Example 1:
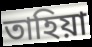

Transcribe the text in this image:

তাহিয়া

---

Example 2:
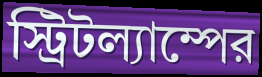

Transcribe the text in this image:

স্ট্রিটল্যাম্পের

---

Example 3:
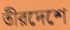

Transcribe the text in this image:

তীরদেশে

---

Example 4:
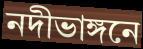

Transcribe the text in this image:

নদীভাঙ্গনে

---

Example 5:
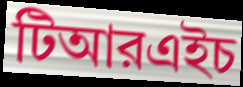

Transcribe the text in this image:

টিআরএইচ